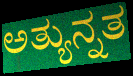
ಅತ್ಯುನ್ನತ